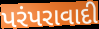
પરંપરાવાદી